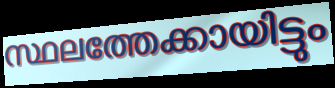
സ്ഥലത്തേക്കായിട്ടും